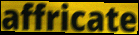
affricate